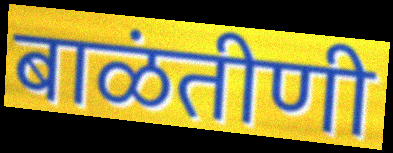
बाळंतीणी